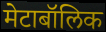
मेटाबॉलिक